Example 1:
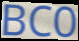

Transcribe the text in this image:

BCO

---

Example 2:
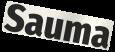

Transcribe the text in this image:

Sauma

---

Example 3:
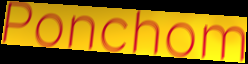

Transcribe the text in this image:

Ponchom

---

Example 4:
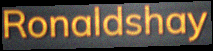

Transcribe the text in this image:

Ronaldshay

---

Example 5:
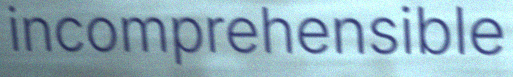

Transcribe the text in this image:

incomprehensible